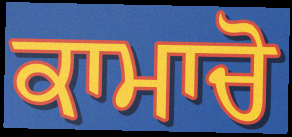
ਕਾਮਾਚੋ